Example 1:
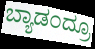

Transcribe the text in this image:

ಬ್ಯಾಡಂದ್ರೂ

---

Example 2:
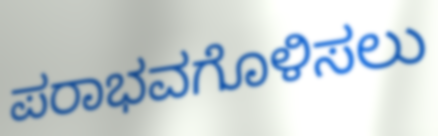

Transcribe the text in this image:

ಪರಾಭವಗೊಳಿಸಲು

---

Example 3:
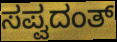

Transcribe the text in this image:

ಸಪ್ವದಂತ್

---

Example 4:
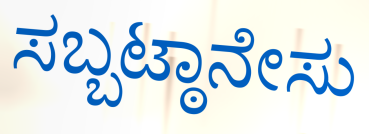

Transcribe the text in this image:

ಸಬ್ಬಟ್ಠಾನೇಸು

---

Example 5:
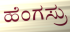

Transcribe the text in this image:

ಹೆಂಗಸ್ರು